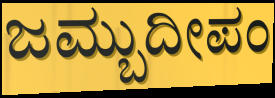
ಜಮ್ಬುದೀಪಂ